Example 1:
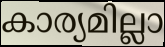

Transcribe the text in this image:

കാര്യമില്ലാ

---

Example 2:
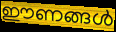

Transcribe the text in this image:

ഈണങ്ങൾ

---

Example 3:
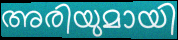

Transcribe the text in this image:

അരിയുമായി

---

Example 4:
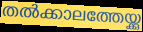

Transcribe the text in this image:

തൽക്കാലത്തേയ്ക്കു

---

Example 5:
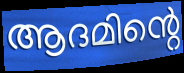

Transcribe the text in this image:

ആദമിന്റെ